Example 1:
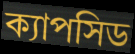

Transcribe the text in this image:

ক্যাপসিড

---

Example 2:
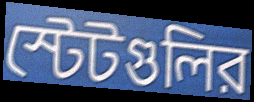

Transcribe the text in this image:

স্টেটগুলির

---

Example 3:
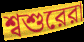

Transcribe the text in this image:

শ্বশুরেরা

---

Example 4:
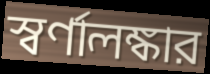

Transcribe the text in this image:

স্বর্ণালঙ্কার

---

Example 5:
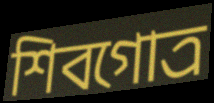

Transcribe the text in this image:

শিবগোত্র